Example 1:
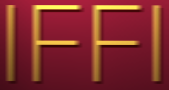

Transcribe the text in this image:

IFFI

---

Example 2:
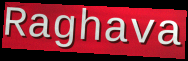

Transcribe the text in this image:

Raghava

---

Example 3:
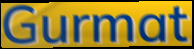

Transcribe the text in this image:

Gurmat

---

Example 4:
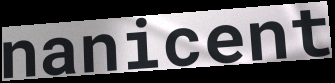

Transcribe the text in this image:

nanicent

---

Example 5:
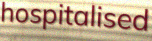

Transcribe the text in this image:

hospitalised